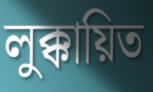
লুক্কায়িত